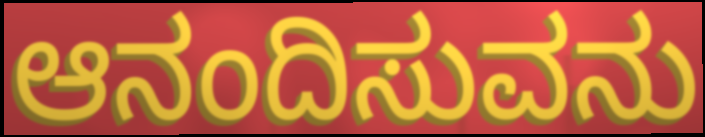
ಆನಂದಿಸುವನು